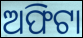
ଅଫିଟା